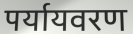
पर्यायवरण